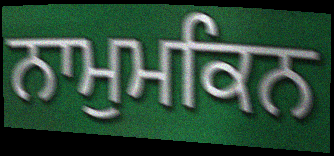
ਨਾਮੁਮਕਿਨ